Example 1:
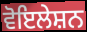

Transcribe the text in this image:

ਵੋਇਲੇਸ਼ਨ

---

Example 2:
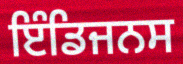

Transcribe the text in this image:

ਇੰਡਿਜਨਸ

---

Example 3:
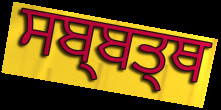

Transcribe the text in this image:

ਸਬ੍ਬਤ੍ਥ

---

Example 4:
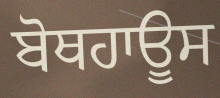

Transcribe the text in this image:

ਬੋਥਹਾਊਸ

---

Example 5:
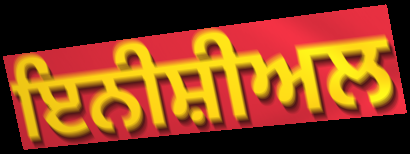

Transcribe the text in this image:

ਇਨੀਸ਼ੀਅਲ